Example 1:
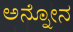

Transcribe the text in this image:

ಅನ್ನೋನ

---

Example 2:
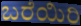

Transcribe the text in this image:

ಬರೆಯಿರಿ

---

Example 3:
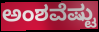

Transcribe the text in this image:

ಅಂಶವೆಷ್ಟು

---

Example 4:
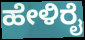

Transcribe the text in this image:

ಹೇಳಿರೈ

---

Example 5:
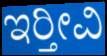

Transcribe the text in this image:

ಇರ‍್ತೀವಿ